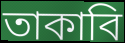
তাকাবি